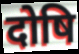
दोषि